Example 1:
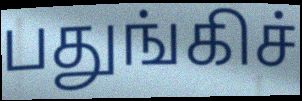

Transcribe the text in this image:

பதுங்கிச்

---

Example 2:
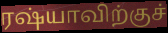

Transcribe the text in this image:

ரஷ்யாவிற்குச்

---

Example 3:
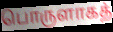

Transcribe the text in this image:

பொருளாகத்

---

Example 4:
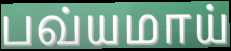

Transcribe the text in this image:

பவ்யமாய்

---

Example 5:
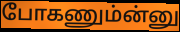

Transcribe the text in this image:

போகணும்ன்னு